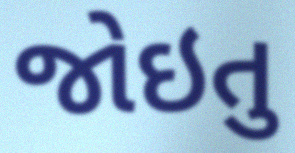
જોઇતુ